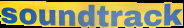
soundtrack